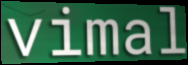
vimal